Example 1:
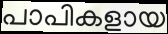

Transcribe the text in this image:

പാപികളായ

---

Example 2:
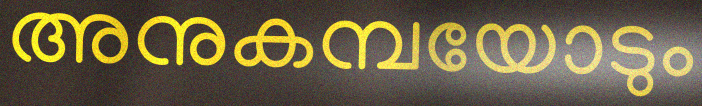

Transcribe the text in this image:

അനുകമ്പയോടും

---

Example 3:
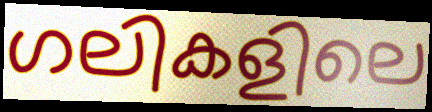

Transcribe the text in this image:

ഗലികളിലെ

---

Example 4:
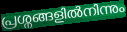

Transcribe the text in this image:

പ്രശ്നങ്ങളിൽനിന്നും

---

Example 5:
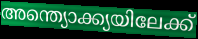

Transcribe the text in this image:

അന്ത്യൊക്ക്യയിലേക്ക്